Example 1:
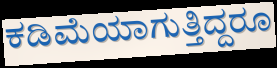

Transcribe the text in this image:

ಕಡಿಮೆಯಾಗುತ್ತಿದ್ದರೂ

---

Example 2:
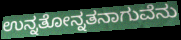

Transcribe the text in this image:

ಉನ್ನತೋನ್ನತನಾಗುವೆನು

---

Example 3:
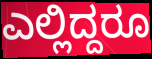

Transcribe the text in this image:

ಎಲ್ಲಿದ್ದರೂ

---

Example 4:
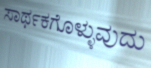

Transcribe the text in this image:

ಸಾರ್ಥಕಗೊಳ್ಳುವುದು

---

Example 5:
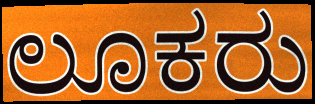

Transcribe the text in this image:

ಲೂಕರು